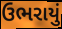
ઉભરાયું